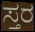
ಸ್ತರ